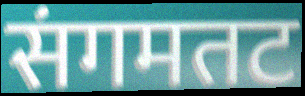
संगमतट